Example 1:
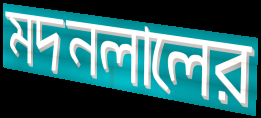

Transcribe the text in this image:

মদনলালের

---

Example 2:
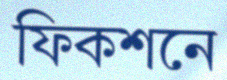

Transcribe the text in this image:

ফিকশনে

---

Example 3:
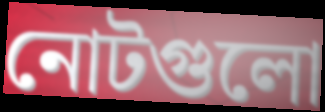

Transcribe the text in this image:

নোটগুলো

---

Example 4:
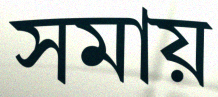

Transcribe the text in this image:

সমায়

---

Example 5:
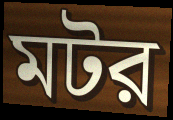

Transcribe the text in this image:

মটর